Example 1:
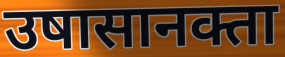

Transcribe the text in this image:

उषासानक्ता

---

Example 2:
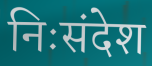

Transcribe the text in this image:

निःसंदेश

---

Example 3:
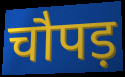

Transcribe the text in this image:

चौपड़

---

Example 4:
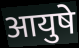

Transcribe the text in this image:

आयुषे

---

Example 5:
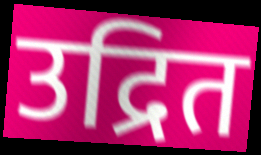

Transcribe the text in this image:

उद्रित